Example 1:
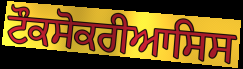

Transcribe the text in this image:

ਟੌਕਸੋਕਰੀਆਸਿਸ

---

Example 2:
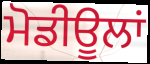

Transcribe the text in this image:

ਮੋਡੀਊਲਾਂ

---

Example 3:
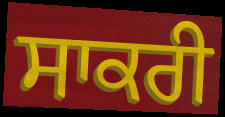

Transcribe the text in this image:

ਸਾਕਰੀ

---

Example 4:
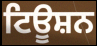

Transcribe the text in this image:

ਟਿਊਸ਼ਨ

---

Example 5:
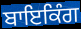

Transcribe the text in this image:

ਬਾਇਕਿੰਗ